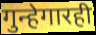
गुन्हेगारही